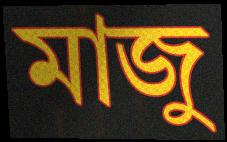
মাজু